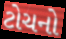
ટોચનો